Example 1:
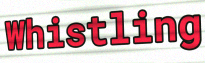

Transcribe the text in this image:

Whistling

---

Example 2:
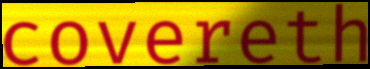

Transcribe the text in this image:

covereth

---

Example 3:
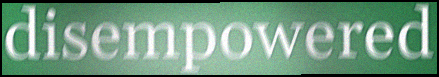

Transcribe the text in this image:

disempowered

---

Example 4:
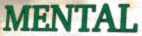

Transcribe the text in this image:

MENTAL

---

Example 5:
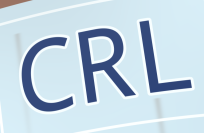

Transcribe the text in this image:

CRL